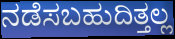
ನಡೆಸಬಹುದಿತ್ತಲ್ಲ